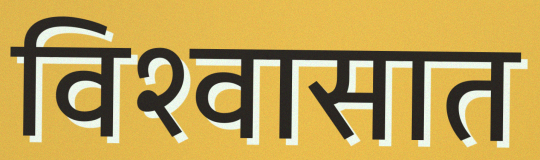
विश्वासात